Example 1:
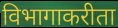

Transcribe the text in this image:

विभागाकरीता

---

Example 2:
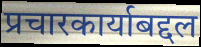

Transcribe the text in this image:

प्रचारकार्याबद्दल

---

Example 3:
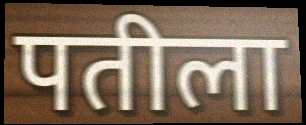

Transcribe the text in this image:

पतीला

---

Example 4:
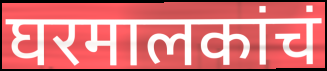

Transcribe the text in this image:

घरमालकांचं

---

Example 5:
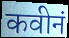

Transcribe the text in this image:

कवीनं